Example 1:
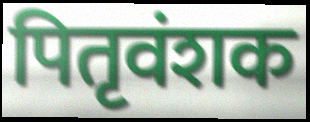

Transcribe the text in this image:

पितृवंशक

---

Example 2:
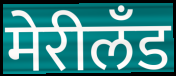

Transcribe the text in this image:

मेरीलँड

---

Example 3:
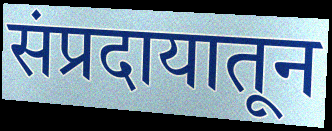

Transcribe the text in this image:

संप्रदायातून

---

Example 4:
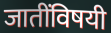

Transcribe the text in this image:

जातींविषयी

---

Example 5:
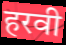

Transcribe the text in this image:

हरवी